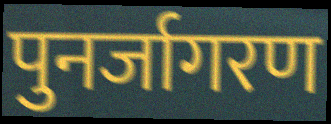
पुनर्जागरण